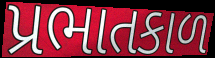
પ્રભાતકાળ